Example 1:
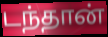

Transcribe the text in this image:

டந்தான்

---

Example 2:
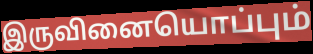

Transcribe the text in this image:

இருவினையொப்பும்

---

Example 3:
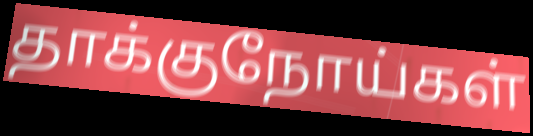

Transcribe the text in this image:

தாக்குநோய்கள்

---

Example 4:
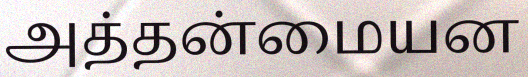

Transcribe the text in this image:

அத்தன்மையன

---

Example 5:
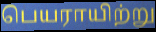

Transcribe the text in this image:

பெயராயிற்று